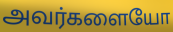
அவர்களையோ